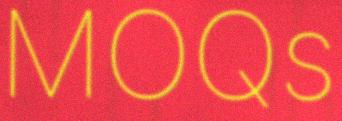
MOQs